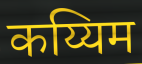
कय्यिम